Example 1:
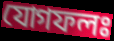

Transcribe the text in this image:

যোগফলঃ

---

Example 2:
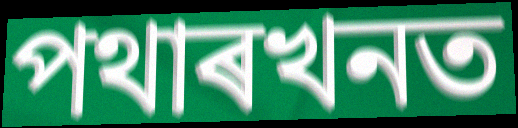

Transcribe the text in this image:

পথাৰখনত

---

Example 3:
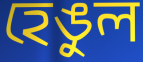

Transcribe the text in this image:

হেঙুল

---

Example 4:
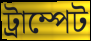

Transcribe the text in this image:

ট্ৰাম্পেট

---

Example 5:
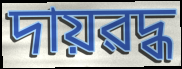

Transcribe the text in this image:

দায়ৱদ্ধ